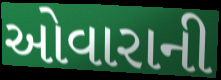
ઓવારાની